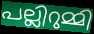
പല്ലിറുമ്മി